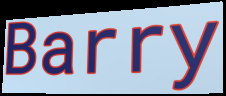
Barry